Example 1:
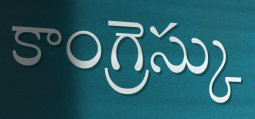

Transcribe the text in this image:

కాంగ్రెస్కు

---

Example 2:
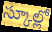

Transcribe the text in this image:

స్కూల్లో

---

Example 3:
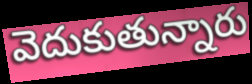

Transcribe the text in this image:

వెదుకుతున్నారు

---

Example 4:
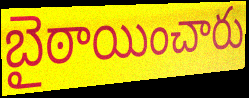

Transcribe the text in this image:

బైఠాయించారు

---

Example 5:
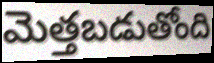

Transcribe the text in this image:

మెత్తబడుతోంది